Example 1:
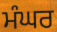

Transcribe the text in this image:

ਮੰਘਰ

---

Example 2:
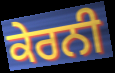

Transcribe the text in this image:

ਕੇਰਨੀ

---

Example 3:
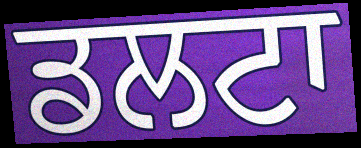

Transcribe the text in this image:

ਡਲਟਾ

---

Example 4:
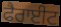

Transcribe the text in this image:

ਫੈਰਾਈਟ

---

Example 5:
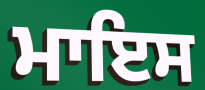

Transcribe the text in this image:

ਮਾਇਸ